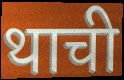
थाची